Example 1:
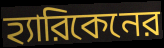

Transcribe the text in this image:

হ্যারিকেনের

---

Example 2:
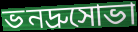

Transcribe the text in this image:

ভনদ্রুসোভা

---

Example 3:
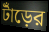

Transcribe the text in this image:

টাঁড়ের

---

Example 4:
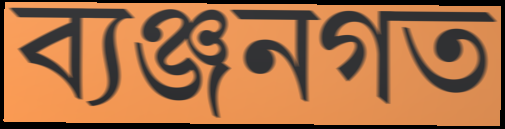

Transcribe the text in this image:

ব্যঞ্জনগত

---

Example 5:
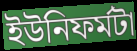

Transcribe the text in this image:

ইউনিফর্মটা